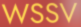
WSSV